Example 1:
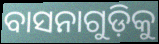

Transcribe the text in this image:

ବାସନାଗୁଡ଼ିକୁ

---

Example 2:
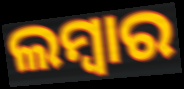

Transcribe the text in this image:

ଲମ୍ୱାର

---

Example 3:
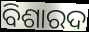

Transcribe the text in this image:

ବିଶାରଦ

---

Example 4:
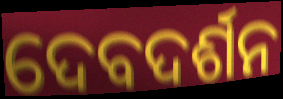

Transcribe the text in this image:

ଦେବଦର୍ଶନ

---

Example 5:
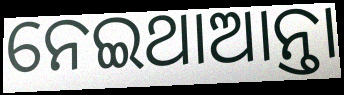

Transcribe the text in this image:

ନେଇଥାଆନ୍ତା